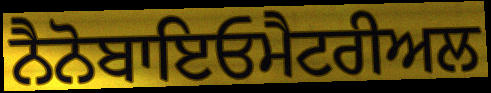
ਨੈਨੋਬਾਇਓਮੈਟਰੀਅਲ